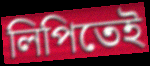
লিপিতেই